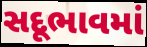
સદૂભાવમાં